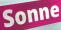
Sonne